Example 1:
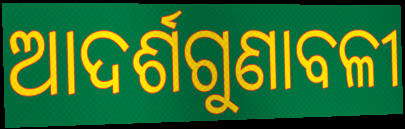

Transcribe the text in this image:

ଆଦର୍ଶଗୁଣାବଳୀ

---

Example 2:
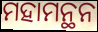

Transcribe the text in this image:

ମହାମନ୍ଥନ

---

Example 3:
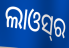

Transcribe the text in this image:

ଲାଓସ୍‌ର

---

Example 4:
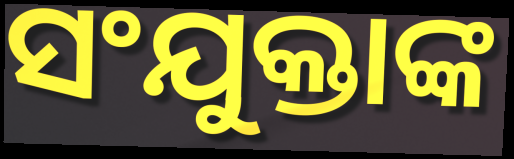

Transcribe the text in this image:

ସଂଯୁକ୍ତାଙ୍କ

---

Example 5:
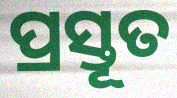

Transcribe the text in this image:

ପ୍ରସ୍ତୂତ